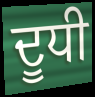
ਦੂਧੀ